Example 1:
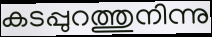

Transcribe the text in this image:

കടപ്പുറത്തുനിന്നു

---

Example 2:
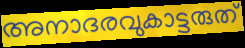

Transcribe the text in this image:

അനാദരവുകാട്ടരുത്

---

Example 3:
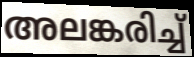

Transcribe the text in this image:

അലങ്കരിച്ച്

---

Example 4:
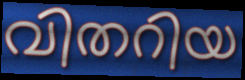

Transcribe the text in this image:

വിതറിയ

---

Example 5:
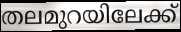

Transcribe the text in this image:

തലമുറയിലേക്ക്